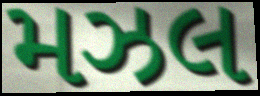
મઝલ